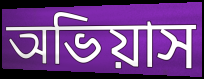
অভিয়াস